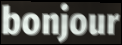
bonjour